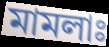
মামলাঃ